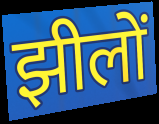
झीलों